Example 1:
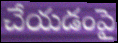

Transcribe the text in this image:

చేయడంపై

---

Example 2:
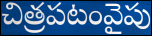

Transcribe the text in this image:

చిత్రపటంవైపు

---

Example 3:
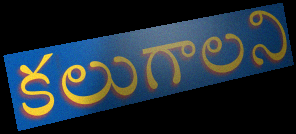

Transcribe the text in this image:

కలుగాలని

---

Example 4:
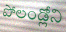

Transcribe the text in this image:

పోలండ్లోని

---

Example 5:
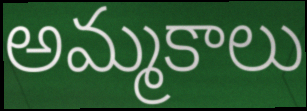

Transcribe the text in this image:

అమ్మకాలు